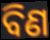
ବିଣ